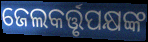
ଜେଲକର୍ତ୍ତୃପକ୍ଷଙ୍କ